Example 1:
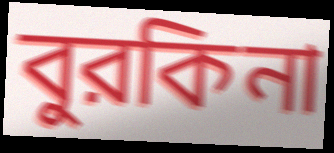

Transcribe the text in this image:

বুরকিনা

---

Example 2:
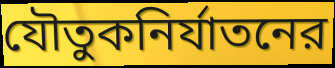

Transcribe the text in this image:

যৌতুকনির্যাতনের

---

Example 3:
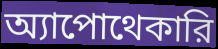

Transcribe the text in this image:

অ্যাপোথেকারি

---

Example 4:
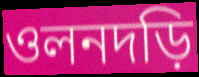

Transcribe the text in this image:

ওলনদড়ি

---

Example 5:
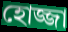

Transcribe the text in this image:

হোজ্জা